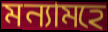
মন্যামহে